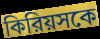
কিরিয়সকে